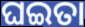
ଘଇତା